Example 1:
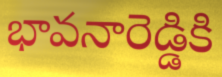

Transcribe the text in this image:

భావనారెడ్డికి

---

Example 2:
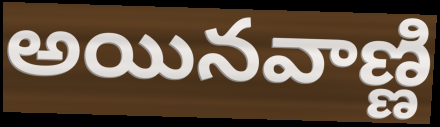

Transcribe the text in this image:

అయినవాణ్ణి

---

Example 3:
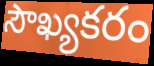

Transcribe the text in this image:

సౌఖ్యకరం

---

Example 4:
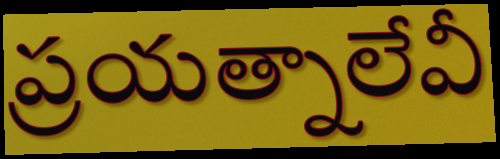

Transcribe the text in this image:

ప్రయత్నాలేవీ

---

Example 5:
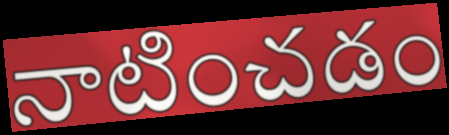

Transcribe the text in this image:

నాటించడం